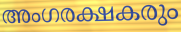
അംഗരക്ഷകരും